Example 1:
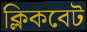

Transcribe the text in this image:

ক্লিকবেট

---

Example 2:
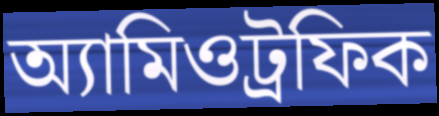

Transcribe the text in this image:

অ্যামিওট্রফিক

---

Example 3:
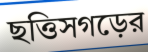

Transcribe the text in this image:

ছত্তিসগড়ের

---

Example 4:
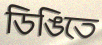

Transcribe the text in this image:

ডিঙিতে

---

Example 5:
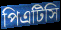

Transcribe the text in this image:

পিএটিসি